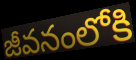
జీవనంలోకి